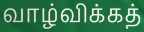
வாழ்விக்கத்